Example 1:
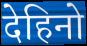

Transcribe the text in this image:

देहिनो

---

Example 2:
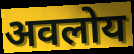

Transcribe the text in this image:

अवलोय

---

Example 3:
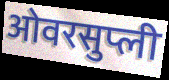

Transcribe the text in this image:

ओवरसुप्ली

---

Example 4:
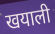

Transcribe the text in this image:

खयाली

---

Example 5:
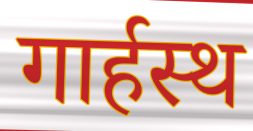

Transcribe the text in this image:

गार्हस्थ